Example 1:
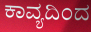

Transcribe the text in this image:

ಕಾವ್ಯದಿಂದ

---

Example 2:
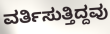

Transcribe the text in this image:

ವರ್ತಿಸುತ್ತಿದ್ದವು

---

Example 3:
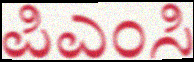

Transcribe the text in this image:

ಪಿಎಂಸಿ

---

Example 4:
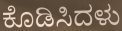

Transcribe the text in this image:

ಕೊಡಿಸಿದಳು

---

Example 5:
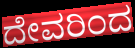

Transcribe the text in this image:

ದೇವರಿಂದ